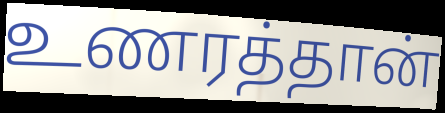
உணரத்தான்